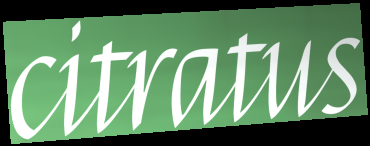
citratus